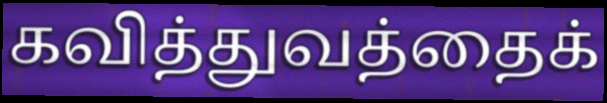
கவித்துவத்தைக்